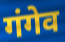
गंगेव